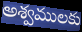
అశ్వములకు